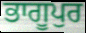
ਭਾਗੂਪੁਰ